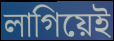
লাগিয়েই